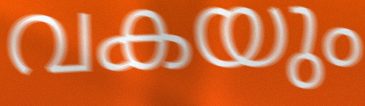
വകയും